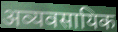
अव्यवसायिक